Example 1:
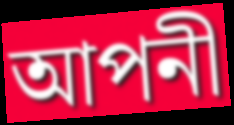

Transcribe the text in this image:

আপনী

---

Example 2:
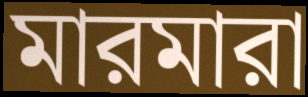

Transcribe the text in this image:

মারমারা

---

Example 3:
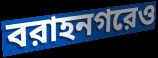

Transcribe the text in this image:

বরাহনগরেও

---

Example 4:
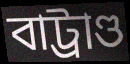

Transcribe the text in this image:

বাট্রাণ্ড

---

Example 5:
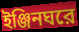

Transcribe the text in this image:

ইঞ্জিনঘরে